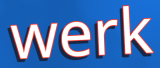
werk